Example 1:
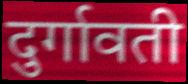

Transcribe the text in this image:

दुर्गावती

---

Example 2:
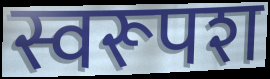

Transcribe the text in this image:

स्वरूपश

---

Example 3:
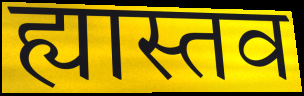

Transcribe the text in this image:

ह्यास्तव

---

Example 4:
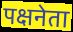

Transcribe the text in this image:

पक्षनेता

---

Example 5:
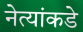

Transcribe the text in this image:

नेत्यांकडे